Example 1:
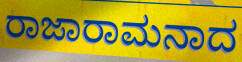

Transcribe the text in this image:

ರಾಜಾರಾಮನಾದ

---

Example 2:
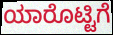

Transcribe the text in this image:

ಯಾರೊಟ್ಟಿಗೆ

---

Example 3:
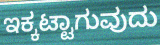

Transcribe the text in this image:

ಇಕ್ಕಟ್ಟಾಗುವುದು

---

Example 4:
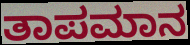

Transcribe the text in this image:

ತಾಪಮಾನ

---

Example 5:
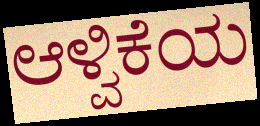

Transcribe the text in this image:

ಆಳ್ವಿಕೆಯ